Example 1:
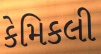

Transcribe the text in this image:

કેમિકલી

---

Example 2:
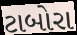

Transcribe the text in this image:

ટાબોરા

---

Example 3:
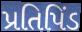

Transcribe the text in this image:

પ્રતિપિંડ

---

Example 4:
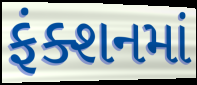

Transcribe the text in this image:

ફંક્શનમાં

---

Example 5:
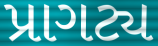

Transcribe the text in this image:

પ્રાગટ્ય